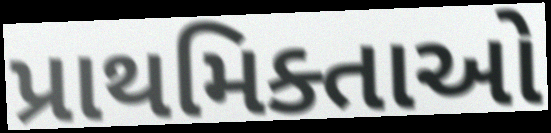
પ્રાથમિક્તાઓ